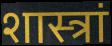
शास्त्रां